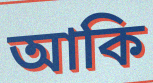
আকি